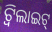
ଟ୍ୱିଲାଇଟ୍